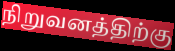
நிறுவனத்திற்கு